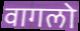
वागलो